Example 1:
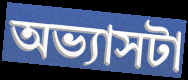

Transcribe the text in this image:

অভ্যাসটা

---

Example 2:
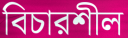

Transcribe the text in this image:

বিচারশীল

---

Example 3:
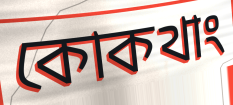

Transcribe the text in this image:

কোকথাং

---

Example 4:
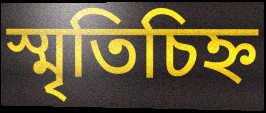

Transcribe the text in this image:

স্মৃতিচিহ্ন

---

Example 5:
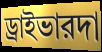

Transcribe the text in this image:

ড্রাইভারদা